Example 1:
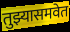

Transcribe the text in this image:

तुझ्यासमवेत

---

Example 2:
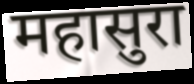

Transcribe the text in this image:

महासुरा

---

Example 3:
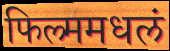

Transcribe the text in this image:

फिल्ममधलं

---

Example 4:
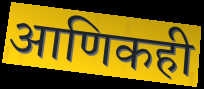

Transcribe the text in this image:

आणिकही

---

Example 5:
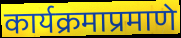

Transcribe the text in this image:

कार्यक्रमाप्रमाणे